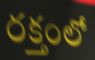
రక్తంలో